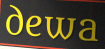
dewa